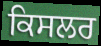
ਕਿਸਲਰ